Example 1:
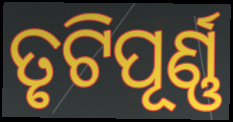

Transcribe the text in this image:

ତୃଟିପୂର୍ଣ୍ଣ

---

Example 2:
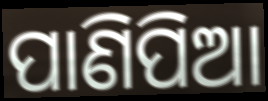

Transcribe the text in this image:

ପାଣିପିଆ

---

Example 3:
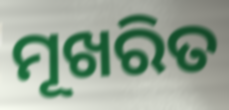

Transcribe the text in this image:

ମୂଖରିତ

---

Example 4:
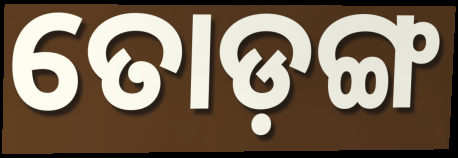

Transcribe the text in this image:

ତୋଡ଼ଙ୍ଗ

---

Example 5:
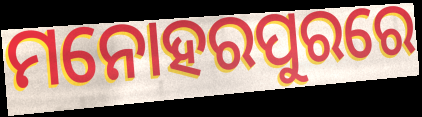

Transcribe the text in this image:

ମନୋହରପୁରରେ